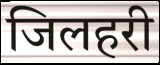
जिलहरी